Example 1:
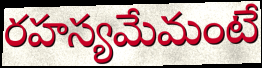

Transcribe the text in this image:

రహస్యమేమంటే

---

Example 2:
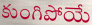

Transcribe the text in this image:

కుంగిపోయే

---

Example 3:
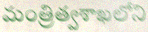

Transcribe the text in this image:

మంత్రిత్వశాఖలోని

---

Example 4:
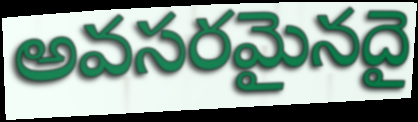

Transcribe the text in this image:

అవసరమైనదై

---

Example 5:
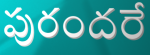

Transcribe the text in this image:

పురందరే